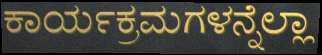
ಕಾರ್ಯಕ್ರಮಗಳನ್ನೆಲ್ಲಾ